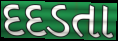
દદડતા